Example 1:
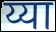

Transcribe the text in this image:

य्या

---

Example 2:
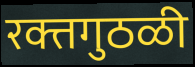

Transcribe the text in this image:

रक्तगुठळी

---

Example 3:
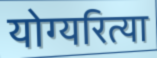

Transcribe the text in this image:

योग्यरित्या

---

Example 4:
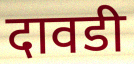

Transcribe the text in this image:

दावडी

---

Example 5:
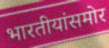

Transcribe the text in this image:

भारतीयांसमोर